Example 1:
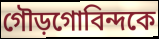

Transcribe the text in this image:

গৌড়গোবিন্দকে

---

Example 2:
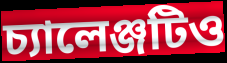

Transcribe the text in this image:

চ্যালেঞ্জটিও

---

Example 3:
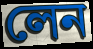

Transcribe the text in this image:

লেন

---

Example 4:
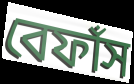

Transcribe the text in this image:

বেফাঁস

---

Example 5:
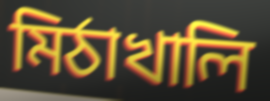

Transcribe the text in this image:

মিঠাখালি